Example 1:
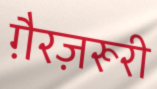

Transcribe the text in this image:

ग़ैरज़रूरी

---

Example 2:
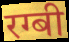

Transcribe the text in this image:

रग्बी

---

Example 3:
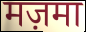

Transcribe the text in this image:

मज़मा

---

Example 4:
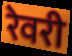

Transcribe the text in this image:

रेवरी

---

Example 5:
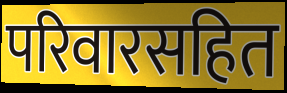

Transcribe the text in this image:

परिवारसहित